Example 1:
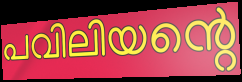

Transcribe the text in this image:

പവിലിയന്റെ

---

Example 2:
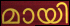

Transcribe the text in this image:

മായി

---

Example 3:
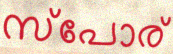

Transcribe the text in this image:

സ്പോര്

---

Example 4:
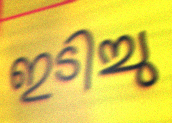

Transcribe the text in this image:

ഇടിച്ചു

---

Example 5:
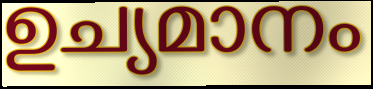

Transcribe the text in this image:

ഉച്യമാനം